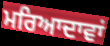
ਮਰਿਆਦਾਵਾਂ